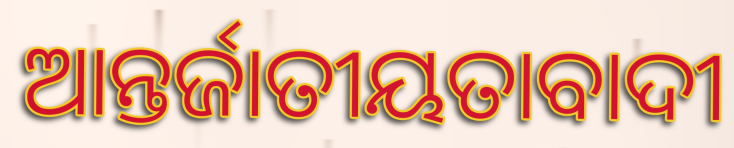
ଆନ୍ତର୍ଜାତୀୟତାବାଦୀ